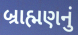
બ્રાહ્મણનું